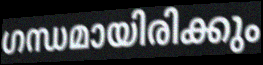
ഗന്ധമായിരിക്കും